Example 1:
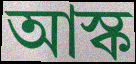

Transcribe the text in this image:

আস্ক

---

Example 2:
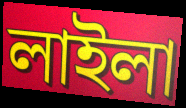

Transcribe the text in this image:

লাইলা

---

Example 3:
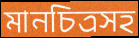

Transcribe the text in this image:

মানচিত্রসহ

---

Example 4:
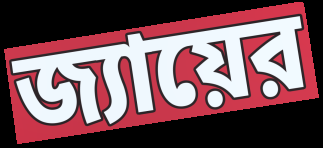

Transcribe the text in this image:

জ্যায়ের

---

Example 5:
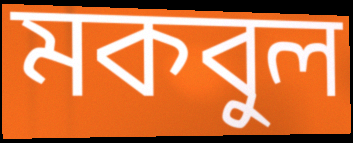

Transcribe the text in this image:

মকবুল